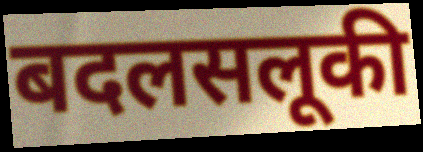
बदलसलूकी